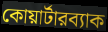
কোয়ার্টারব্যাক